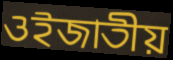
ওইজাতীয়